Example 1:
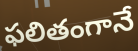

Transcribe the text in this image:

ఫలితంగానే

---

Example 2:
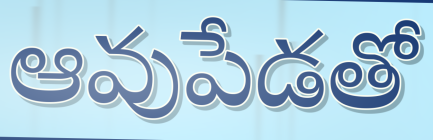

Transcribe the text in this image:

ఆవుపేడతో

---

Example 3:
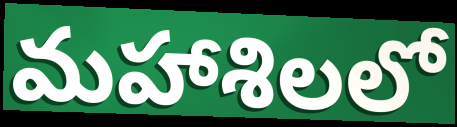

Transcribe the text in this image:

మహాశిలలో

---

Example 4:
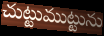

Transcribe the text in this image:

చుట్టుముట్టును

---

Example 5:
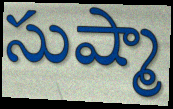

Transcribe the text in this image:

సుష్మా